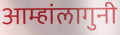
आम्हांलागुनी